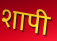
शापी